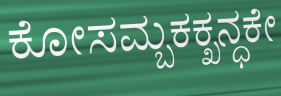
ಕೋಸಮ್ಬಕಕ್ಖನ್ಧಕೇ